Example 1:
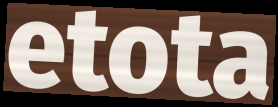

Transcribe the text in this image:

etota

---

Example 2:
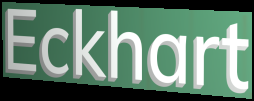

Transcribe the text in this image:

Eckhart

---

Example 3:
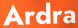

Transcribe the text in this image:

Ardra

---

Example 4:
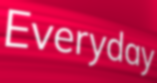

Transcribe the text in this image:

Everyday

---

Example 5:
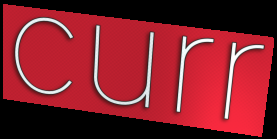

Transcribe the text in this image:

curr